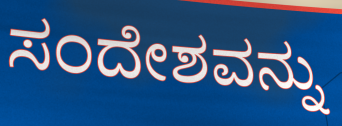
ಸಂದೇಶವನ್ನು